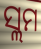
ସ୍ଲମ